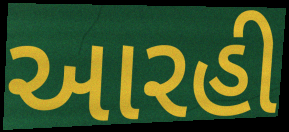
આરહી